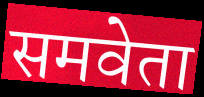
समवेता